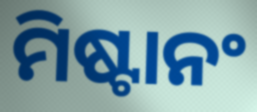
ମିଷ୍ଟାନଂ